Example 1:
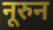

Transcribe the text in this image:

नूरुन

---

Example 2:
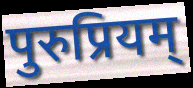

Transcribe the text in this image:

पुरुप्रियम्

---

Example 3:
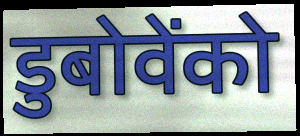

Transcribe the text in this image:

डुबोवेंको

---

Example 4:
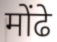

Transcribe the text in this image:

मोंढे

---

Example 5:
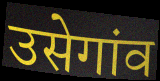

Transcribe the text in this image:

उसेगांव